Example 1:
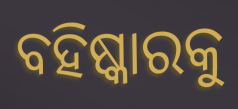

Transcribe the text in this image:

ବହିଷ୍କାରକୁ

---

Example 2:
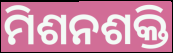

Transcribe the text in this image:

ମିଶନଶକ୍ତି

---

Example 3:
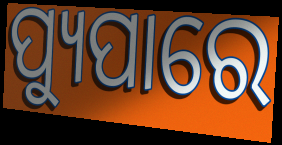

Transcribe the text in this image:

ପ୍ୟୁପାରେ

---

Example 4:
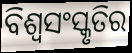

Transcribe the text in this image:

ବିଶ୍ୱସଂସ୍କୃତିର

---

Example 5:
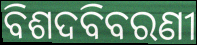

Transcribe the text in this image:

ବିଶଦବିବରଣୀ